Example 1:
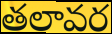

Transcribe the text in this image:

తలావర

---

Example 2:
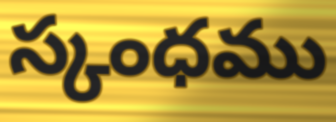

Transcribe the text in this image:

స్కంధము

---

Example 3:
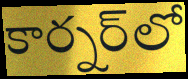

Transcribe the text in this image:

కార్నర్‌లో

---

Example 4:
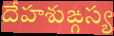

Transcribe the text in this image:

దేహశుఙ్గస్య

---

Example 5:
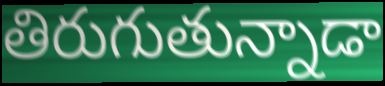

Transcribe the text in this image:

తిరుగుతున్నాడా